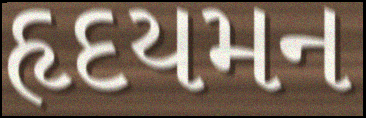
હૃદયમન